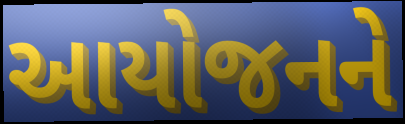
આયોજનને